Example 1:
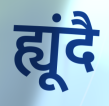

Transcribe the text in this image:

ह्यूंदै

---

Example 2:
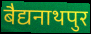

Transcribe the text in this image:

बैद्यनाथपुर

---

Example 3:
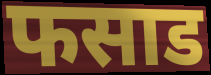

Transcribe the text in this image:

फसाड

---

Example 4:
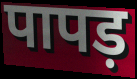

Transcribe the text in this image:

पापड़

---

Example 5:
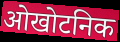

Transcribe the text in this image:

ओखोटनिक